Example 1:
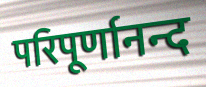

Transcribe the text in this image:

परिपूर्णानन्द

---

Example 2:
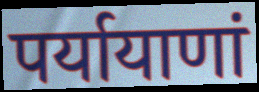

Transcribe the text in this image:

पर्यायाणां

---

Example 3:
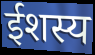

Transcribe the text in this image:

ईशस्य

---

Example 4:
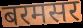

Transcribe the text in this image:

बरमसर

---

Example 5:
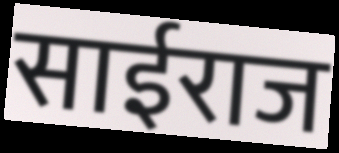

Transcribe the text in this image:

साईराज